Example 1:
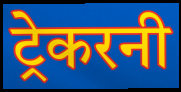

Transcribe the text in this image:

ट्रेकरनी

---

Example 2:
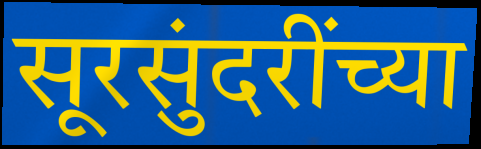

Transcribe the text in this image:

सूरसुंदरींच्या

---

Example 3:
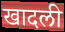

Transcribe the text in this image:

खादली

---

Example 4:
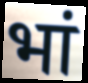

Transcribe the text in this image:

भां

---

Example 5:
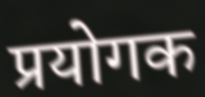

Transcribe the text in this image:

प्रयोगक